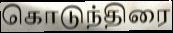
கொடுந்திரை